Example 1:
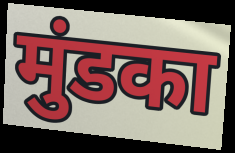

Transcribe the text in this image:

मुंडका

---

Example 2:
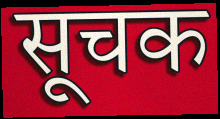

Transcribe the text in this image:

सूचक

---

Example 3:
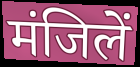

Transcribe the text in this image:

मंजिलें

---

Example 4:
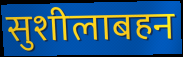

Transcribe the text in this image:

सुशीलाबहन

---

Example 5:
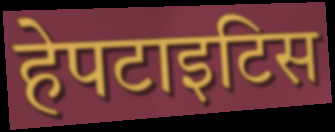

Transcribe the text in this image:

हेपटाइटिस